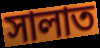
সালাত